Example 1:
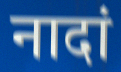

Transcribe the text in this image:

नादां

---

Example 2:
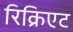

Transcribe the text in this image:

रिक्रिएट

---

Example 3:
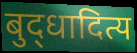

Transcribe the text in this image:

बुद्धादित्य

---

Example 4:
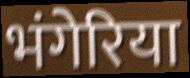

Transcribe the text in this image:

भंगेरिया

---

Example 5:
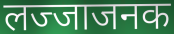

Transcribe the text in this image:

लज्जाजनक